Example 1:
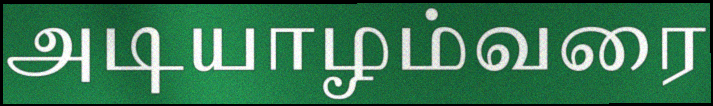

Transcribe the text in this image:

அடியாழம்வரை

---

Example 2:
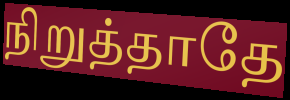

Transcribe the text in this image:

நிறுத்தாதே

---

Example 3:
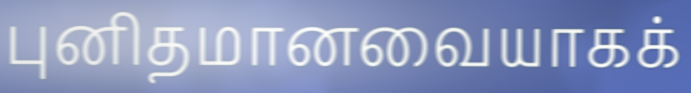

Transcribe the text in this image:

புனிதமானவையாகக்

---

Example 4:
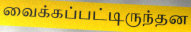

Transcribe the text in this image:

வைக்கப்பட்டிருந்தன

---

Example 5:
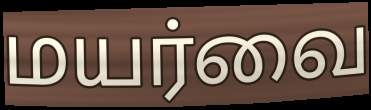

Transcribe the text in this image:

மயர்வை